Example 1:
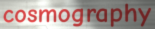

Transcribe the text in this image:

cosmography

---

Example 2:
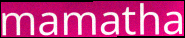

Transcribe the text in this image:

mamatha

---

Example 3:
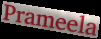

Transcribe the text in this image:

Prameela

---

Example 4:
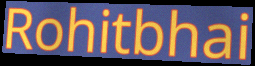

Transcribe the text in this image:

Rohitbhai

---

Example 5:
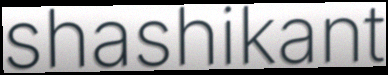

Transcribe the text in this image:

shashikant